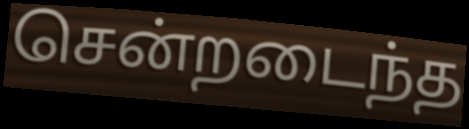
சென்றடைந்த